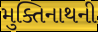
મુક્તિનાથની